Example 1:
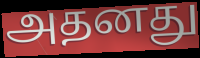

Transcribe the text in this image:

அதனது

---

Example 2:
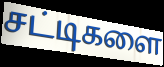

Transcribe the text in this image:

சட்டிகளை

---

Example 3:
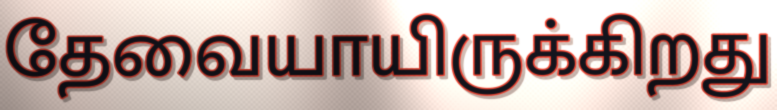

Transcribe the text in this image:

தேவையாயிருக்கிறது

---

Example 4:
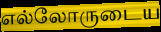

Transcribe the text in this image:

எல்லோருடைய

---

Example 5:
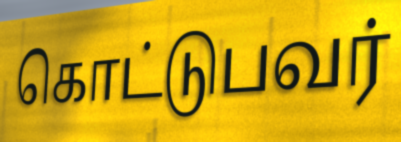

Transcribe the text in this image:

கொட்டுபவர்